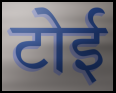
टोई